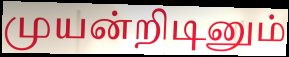
முயன்றிடினும்